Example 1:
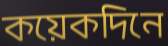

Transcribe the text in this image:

কয়েকদিনে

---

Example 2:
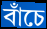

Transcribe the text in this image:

বাঁচে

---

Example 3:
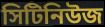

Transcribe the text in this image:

সিটিনিউজ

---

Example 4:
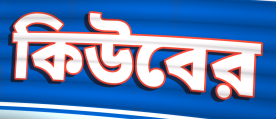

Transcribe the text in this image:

কিউবের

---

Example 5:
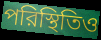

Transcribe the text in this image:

পরিস্থিতিও